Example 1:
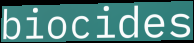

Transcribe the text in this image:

biocides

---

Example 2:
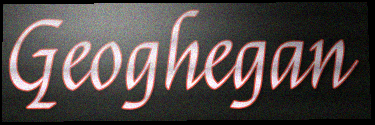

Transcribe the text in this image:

Geoghegan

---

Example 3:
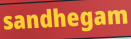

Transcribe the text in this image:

sandhegam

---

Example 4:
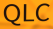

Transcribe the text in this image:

QLC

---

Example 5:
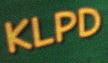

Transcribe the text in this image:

KLPD